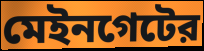
মেইনগেটের